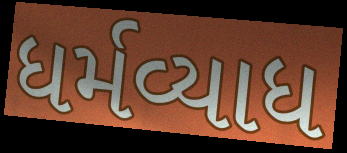
ધર્મવ્યાધ